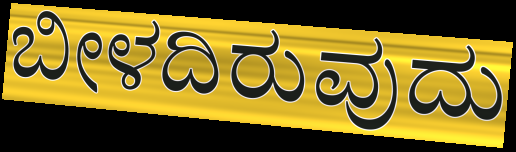
ಬೀಳದಿರುವುದು